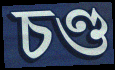
চণ্ড